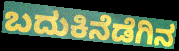
ಬದುಕಿನೆಡೆಗಿನ